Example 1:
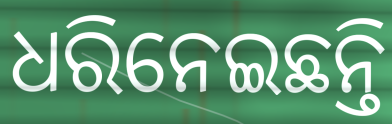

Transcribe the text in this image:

ଧରିନେଇଛନ୍ତି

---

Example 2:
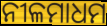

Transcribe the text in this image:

ନୀଳମାଧମ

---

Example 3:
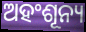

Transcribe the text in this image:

ଅହଂଶୂନ୍ୟ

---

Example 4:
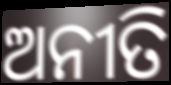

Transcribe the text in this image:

ଅନୀତି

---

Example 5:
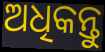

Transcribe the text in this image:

ଅଧିକନ୍ତୁ